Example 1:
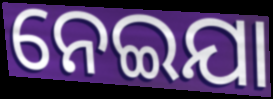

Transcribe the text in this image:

ନେଇଯା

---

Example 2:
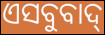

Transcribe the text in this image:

ଏସବୁବାଦ୍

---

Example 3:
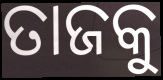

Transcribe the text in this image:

ତାଜକୁ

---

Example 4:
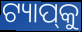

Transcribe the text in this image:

ଟ୍ୟାପ୍‌କୁ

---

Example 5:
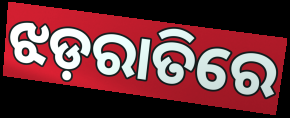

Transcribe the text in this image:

ଝଡ଼ରାତିରେ